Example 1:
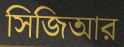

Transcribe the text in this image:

সিজিআর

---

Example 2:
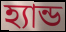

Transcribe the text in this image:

হ্যান্ড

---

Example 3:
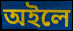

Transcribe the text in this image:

অইলে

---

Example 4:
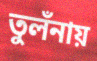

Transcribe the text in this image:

তুলঁনায়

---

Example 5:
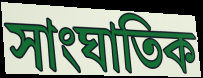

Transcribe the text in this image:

সাংঘাতিক